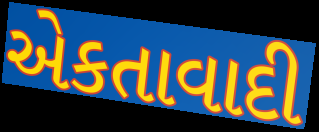
એકતાવાદી